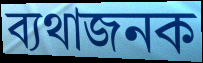
ব্যথাজনক